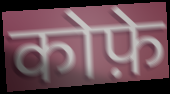
कोफ़े